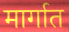
मार्गात